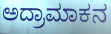
ಅದ್ರಾಮಾಕನ